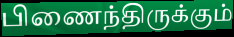
பிணைந்திருக்கும்